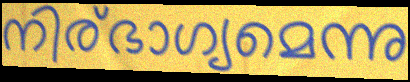
നിര്ഭാഗ്യമെന്നു